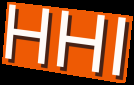
HHI